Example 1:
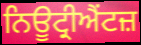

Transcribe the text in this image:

ਨਿਊਟ੍ਰੀਐਂਟਜ਼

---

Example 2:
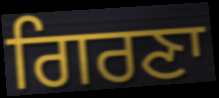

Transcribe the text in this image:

ਗਿਰਣਾ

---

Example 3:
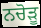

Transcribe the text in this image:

ਨਚੋੜੂ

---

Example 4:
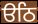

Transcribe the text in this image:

ੳਠਿ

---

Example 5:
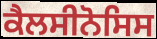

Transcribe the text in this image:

ਕੈਲਸੀਨੋਸਿਸ